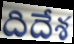
దిదేశ